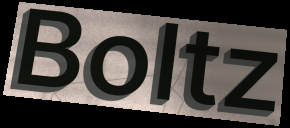
Boltz